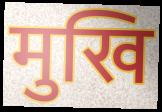
मुखि